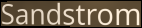
Sandstrom